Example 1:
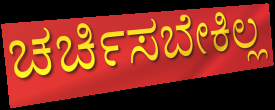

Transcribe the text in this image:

ಚರ್ಚಿಸಬೇಕಿಲ್ಲ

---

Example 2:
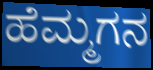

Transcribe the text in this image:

ಹೆಮ್ಮಗನ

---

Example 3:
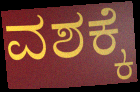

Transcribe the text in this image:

ವಶಕ್ಕೆ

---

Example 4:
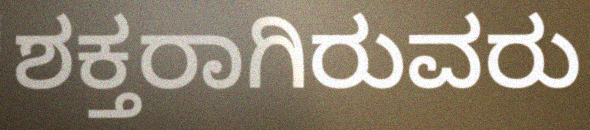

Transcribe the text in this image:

ಶಕ್ತರಾಗಿರುವರು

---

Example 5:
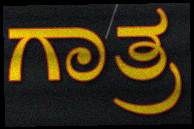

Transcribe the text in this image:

ಗಾತ್ರ